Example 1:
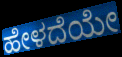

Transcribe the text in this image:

ಹೇಳದೆಯೇ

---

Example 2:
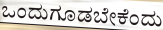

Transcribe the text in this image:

ಒಂದುಗೂಡಬೇಕೆಂದು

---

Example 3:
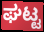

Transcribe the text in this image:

ಘಟ್ಟ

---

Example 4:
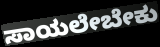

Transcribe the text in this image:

ಸಾಯಲೇಬೇಕು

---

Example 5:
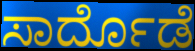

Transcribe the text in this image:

ಸಾರ್ದೊಡೆ